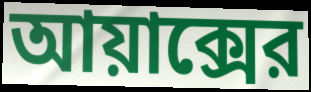
আয়াক্সের